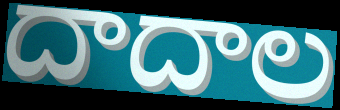
దాదాల